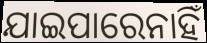
ଯାଇପାରେନାହିଁ